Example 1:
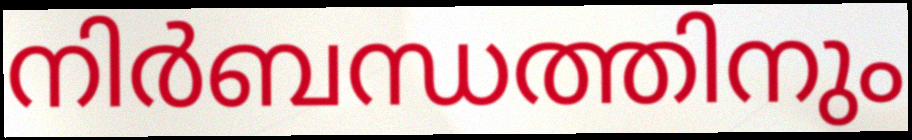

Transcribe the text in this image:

നിർബന്ധത്തിനും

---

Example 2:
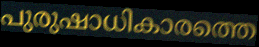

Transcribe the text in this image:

പുരുഷാധികാരത്തെ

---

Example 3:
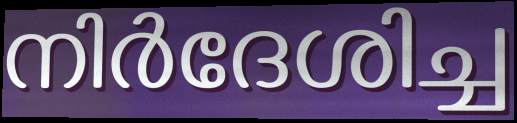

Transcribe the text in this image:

നിർദേശിച്ച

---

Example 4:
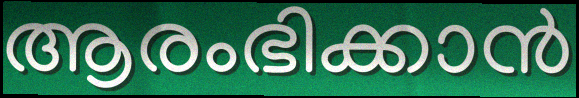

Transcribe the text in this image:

ആരംഭിക്കാൻ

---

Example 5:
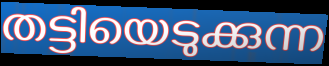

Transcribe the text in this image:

തട്ടിയെടുക്കുന്ന